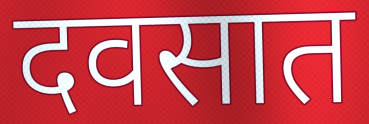
दवसात